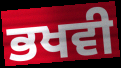
ਭਖਵੀ